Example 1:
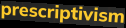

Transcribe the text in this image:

prescriptivism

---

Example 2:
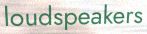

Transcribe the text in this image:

loudspeakers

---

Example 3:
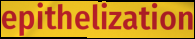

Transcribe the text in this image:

epithelization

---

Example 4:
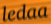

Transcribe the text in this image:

ledaa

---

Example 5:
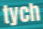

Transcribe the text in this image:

tych